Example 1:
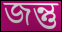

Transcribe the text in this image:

জন্তু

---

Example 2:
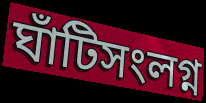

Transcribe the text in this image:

ঘাঁটিসংলগ্ন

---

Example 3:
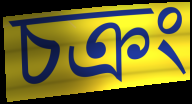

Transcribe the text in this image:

চক্রং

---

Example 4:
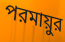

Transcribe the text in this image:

পরমায়ুর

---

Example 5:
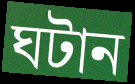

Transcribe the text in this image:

ঘটান